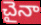
చైనా